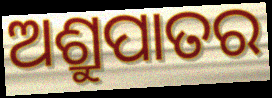
ଅଶ୍ରୁପାତର